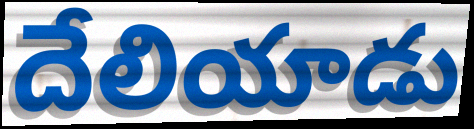
దేలియాడు